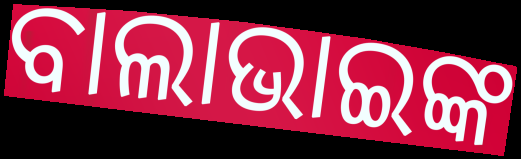
ବାଲାଭାଇଙ୍କ